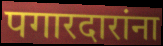
पगारदारांना